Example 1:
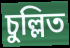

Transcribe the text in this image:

চুল্লিত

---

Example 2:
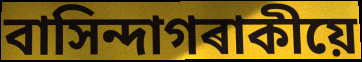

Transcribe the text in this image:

বাসিন্দাগৰাকীয়ে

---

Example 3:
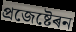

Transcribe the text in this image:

প্ৰজেষ্টেৰন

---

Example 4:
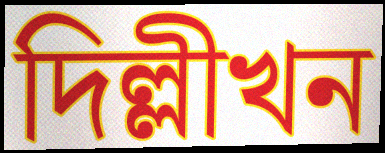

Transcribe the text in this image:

দিল্লীখন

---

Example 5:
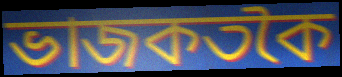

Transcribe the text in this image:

ভাজকতকৈ